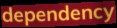
dependency